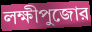
লক্ষীপুজোর